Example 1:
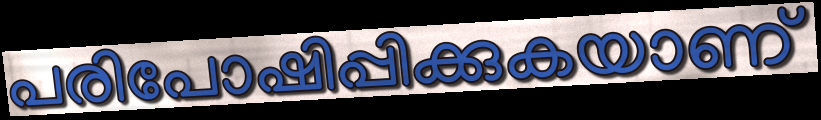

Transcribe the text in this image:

പരിപോഷിപ്പിക്കുകയാണ്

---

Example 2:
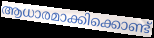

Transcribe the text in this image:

ആധാരമാക്കിക്കൊണ്ട്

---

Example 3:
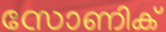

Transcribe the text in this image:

സോണിക്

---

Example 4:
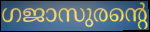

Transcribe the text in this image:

ഗജാസുരന്റെ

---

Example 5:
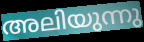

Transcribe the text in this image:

അലിയുന്നു